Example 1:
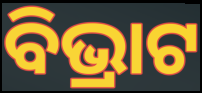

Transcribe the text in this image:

ବିଭ୍ରାଟ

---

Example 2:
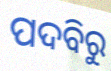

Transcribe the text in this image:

ପଦବିରୁ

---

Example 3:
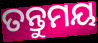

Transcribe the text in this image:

ତନ୍ତୁମୟ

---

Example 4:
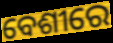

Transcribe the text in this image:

ବେଶୀରେ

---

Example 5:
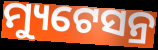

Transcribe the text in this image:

ମ୍ୟୁଟେସନ୍ର